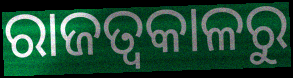
ରାଜତ୍ଵକାଳରୁ